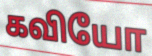
கவியோ